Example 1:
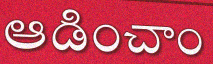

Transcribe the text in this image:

ఆడించాం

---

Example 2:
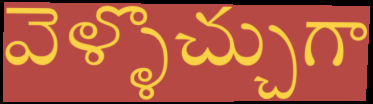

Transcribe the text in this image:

వెళ్ళొచ్చుగా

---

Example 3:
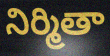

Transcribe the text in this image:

నిర్మితా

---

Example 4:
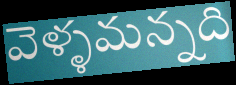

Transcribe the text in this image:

వెళ్ళమన్నది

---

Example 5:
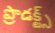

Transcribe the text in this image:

ప్రొడక్ట్స్